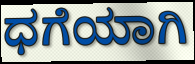
ಧಗೆಯಾಗಿ